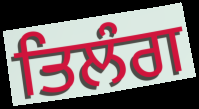
ਤਿਲੰਗ